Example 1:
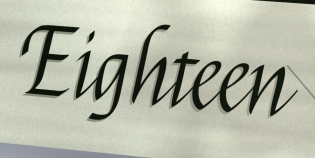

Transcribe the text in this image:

Eighteen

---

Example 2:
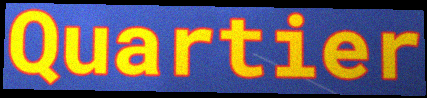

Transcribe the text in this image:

Quartier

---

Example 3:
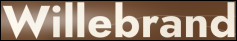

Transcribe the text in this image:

Willebrand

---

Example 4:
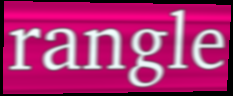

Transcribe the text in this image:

rangle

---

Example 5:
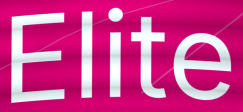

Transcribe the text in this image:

Elite